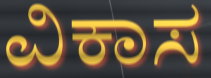
ವಿಕಾಸ